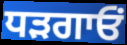
ਧੜਗਾਓਂ